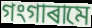
গংগাৰামে